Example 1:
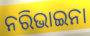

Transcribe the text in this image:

ନରିଭାଇନା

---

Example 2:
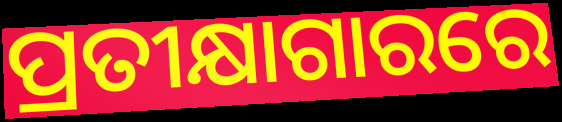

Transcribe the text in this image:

ପ୍ରତୀକ୍ଷାଗାରରେ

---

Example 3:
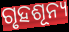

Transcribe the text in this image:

ଗୃହଶୂନ୍ୟ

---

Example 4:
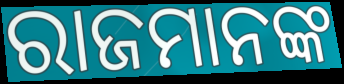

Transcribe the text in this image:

ରାଜମାନଙ୍କ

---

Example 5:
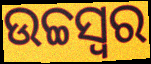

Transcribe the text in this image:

ଉଚ୍ଚସ୍ଵର